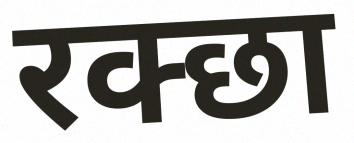
रक्छा